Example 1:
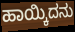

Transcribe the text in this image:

ಹಾಯ್ಕಿದನು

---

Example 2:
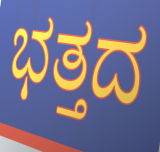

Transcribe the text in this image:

ಭತ್ತದ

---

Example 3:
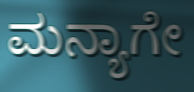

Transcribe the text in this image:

ಮನ್ಯಾಗೇ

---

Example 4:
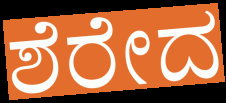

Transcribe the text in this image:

ಶೆರೇದ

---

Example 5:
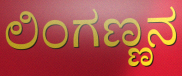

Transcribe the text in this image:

ಲಿಂಗಣ್ಣನ